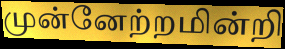
முன்னேற்றமின்றி